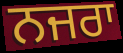
ਨਜਰਾ